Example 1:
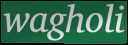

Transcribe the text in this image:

wagholi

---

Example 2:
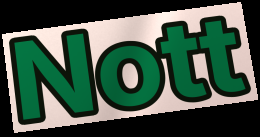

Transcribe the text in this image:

Nott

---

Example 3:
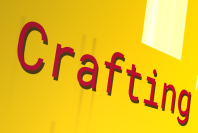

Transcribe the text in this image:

Crafting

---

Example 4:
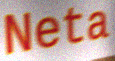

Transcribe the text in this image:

Neta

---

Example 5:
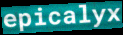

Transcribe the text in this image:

epicalyx